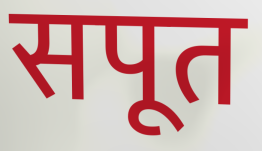
सपूत